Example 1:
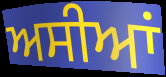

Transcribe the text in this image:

ਅਸੀਆਂ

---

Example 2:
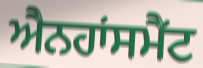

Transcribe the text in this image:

ਐਨਹਾਂਸਮੈਂਟ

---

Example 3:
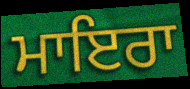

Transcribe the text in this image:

ਮਾਇਰਾ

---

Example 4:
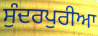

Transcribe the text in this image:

ਸੁੰਦਰਪੁਰੀਆ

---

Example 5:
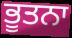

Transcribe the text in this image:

ਭੂਤਨਾ